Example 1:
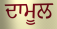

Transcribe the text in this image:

ਦਾਮੂਲ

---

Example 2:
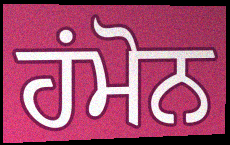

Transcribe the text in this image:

ਹਂਮੋਨ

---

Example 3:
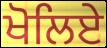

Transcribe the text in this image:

ਖੋਲਿਏ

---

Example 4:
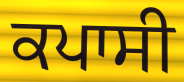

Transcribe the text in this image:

ਕਪਾਸੀ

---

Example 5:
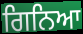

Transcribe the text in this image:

ਗਿਨਿਆ